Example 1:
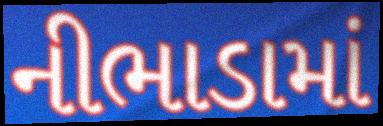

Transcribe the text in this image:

નીભાડામાં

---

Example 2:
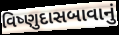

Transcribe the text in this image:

વિષ્ણુદાસબાવાનું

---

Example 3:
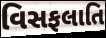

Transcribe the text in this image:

વિસફલાતિ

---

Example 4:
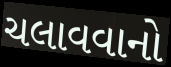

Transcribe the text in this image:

ચલાવવાનો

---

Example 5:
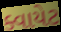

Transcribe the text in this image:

ક્વાયેટ